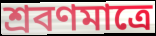
শ্রবণমাত্রে